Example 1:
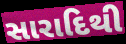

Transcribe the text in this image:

સારાદિથી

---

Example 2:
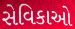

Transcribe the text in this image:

સેવિકાઓ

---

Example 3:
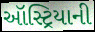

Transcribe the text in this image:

ઑસ્ટ્રિયાની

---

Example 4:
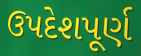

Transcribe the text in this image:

ઉપદેશપૂર્ણ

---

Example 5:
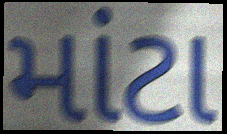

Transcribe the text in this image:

માંટા